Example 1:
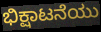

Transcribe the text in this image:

ಭಿಕ್ಷಾಟನೆಯು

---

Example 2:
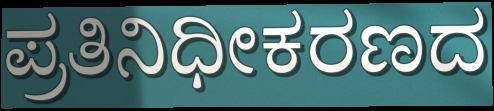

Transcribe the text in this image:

ಪ್ರತಿನಿಧೀಕರಣದ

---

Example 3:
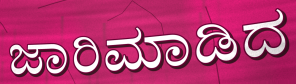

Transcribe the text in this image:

ಜಾರಿಮಾಡಿದ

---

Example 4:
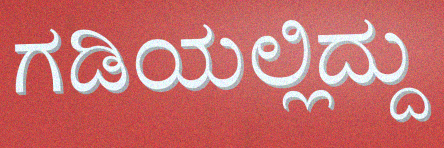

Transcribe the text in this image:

ಗಡಿಯಲ್ಲಿದ್ದು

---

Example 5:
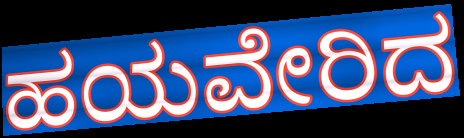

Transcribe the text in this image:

ಹಯವೇರಿದ